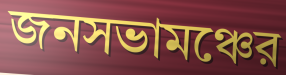
জনসভামঞ্চের